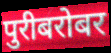
पुरीबरोबर